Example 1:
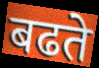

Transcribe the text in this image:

बढते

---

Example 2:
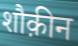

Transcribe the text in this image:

शौक़ीन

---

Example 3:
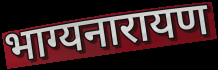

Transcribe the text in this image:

भाग्यनारायण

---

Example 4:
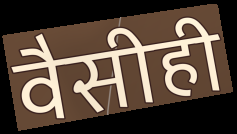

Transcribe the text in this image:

वैसीही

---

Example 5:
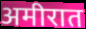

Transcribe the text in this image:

अमीरात